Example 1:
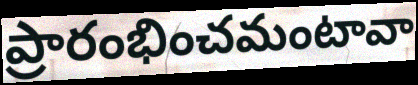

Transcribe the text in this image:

ప్రారంభించమంటావా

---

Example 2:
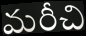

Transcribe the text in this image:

మరీచి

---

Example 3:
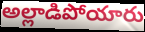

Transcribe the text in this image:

అల్లాడిపోయారు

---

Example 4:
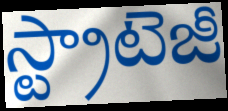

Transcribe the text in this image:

స్ట్రాటెజీ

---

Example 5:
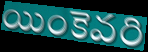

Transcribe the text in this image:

యింకెవరి